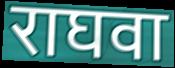
राघवा